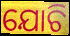
ଯୋଚି